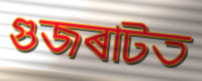
গুজৰাটত